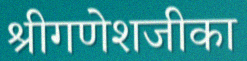
श्रीगणेशजीका